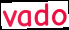
vado